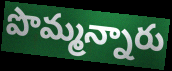
పొమ్మన్నారు